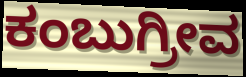
ಕಂಬುಗ್ರೀವ